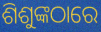
ଶିଶୁଙ୍କଠାରେ